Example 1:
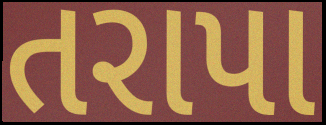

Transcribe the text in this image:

તરાપા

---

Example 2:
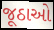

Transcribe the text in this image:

જૂઠાઓ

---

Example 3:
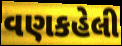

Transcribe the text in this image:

વણકહેલી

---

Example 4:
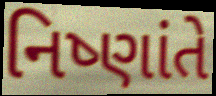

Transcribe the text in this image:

નિષ્ણાંતે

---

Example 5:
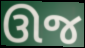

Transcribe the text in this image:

ઊજ